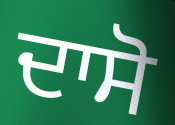
ਦਾਸੋ